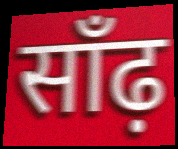
साँढ़